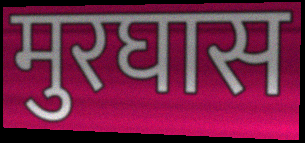
मुरघास